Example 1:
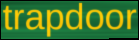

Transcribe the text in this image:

trapdoor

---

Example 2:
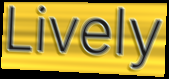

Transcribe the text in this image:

Lively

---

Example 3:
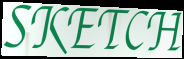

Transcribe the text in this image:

SKETCH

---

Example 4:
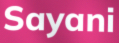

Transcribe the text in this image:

Sayani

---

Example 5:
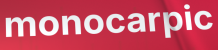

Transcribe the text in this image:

monocarpic